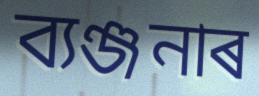
ব্যঞ্জনাৰ